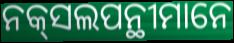
ନକ୍‌ସଲପନ୍ଥୀମାନେ